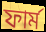
ফার্ম